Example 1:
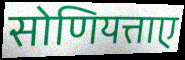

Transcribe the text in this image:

सोणियत्ताए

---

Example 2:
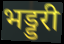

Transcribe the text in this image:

भड्डरी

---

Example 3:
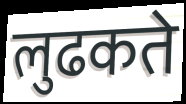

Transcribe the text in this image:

लुढकते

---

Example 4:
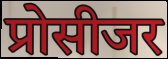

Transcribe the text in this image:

प्रोसीजर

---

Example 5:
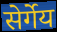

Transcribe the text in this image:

सेर्गेय